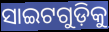
ସାଇଟଗୁଡ଼ିକୁ